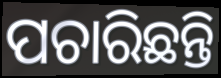
ପଚାରିଛନ୍ତି